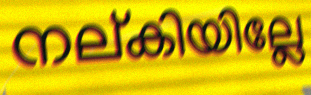
നല്കിയില്ലേ